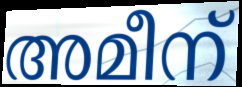
അമീന്